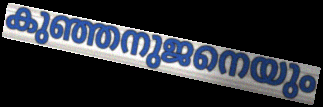
കുഞ്ഞനുജനെയും